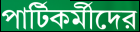
পার্টিকর্মীদের